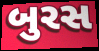
બુરસ